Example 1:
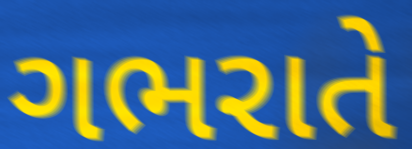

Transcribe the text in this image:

ગભરાતે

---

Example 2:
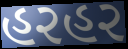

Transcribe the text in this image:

હરહર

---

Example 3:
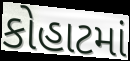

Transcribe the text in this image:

કોહાટમાં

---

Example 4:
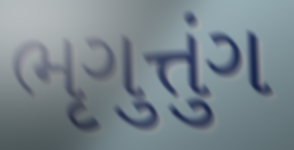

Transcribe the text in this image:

ભૃગુત્તુંગ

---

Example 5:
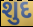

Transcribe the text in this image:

શુદ